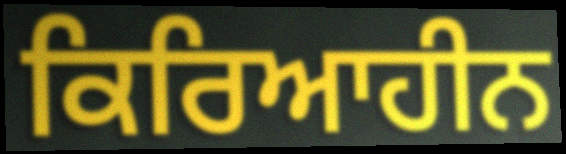
ਕਿਰਿਆਹੀਨ